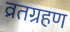
व्रतग्रहण